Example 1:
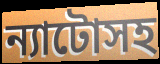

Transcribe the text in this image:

ন্যাটোসহ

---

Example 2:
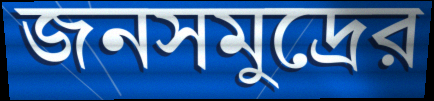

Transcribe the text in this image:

জনসমুদ্রের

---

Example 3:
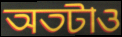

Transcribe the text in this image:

অতটাও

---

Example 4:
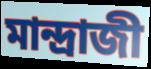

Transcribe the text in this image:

মান্দ্রাজী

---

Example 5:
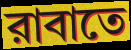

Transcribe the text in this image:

রাবাতে